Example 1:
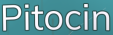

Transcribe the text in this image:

Pitocin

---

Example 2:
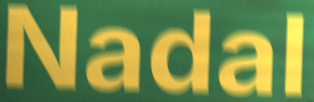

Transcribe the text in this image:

Nadal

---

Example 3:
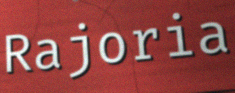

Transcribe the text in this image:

Rajoria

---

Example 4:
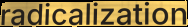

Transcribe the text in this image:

radicalization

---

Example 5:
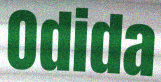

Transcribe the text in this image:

Odida